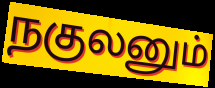
நகுலனும்